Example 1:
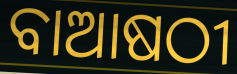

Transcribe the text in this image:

ବାଆଷଠୀ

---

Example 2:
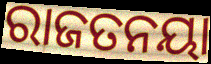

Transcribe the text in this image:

ରାଜତନୟା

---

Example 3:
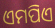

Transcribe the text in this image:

ଏମପିଏ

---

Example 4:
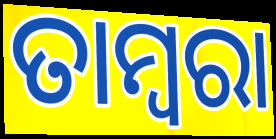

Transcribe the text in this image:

ତାମ୍ବରା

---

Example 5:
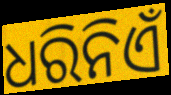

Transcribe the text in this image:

ଧରିନିଏଁ